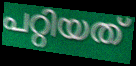
പറ്റിയത്